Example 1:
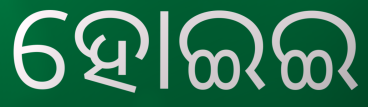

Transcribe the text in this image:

ହୋଇଇ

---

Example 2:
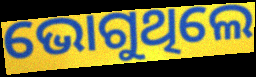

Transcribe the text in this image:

ଭୋଗୁଥିଲେ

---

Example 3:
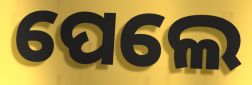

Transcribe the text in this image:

ପେଲେ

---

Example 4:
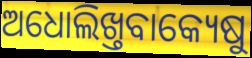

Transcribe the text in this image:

ଅଧୋଲିଖ୍ତବାକ୍ୟେଷୁ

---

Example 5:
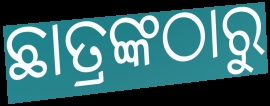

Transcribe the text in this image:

ଛାତ୍ରଙ୍କଠାରୁ